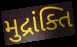
મુદ્રાંક્તિ